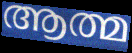
ആത്മ